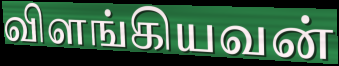
விளங்கியவன்